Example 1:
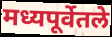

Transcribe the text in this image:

मध्यपूर्वेतले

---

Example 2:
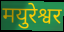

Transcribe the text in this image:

मयुरेश्वर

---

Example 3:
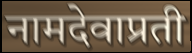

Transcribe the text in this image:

नामदेवाप्रती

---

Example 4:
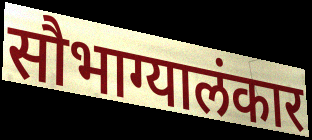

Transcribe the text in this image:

सौभाग्यालंकार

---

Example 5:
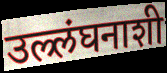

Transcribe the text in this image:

उल्लंघनाशी